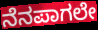
ನೆನಪಾಗಲೇ